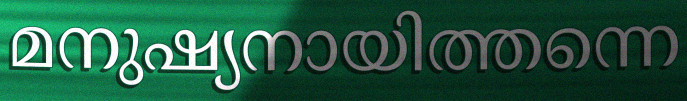
മനുഷ്യനായിത്തന്നെ